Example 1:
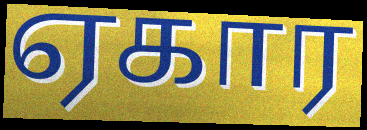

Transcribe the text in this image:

ஏகார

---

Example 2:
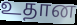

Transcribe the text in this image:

உதான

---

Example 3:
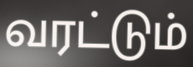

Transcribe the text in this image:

வரட்டும்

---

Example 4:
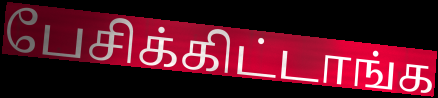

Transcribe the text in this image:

பேசிக்கிட்டாங்க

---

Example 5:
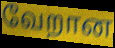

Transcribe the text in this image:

வேறான